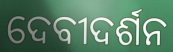
ଦେବୀଦର୍ଶନ